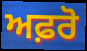
ਅਫ਼ਰੋ